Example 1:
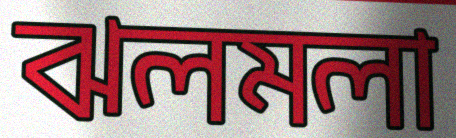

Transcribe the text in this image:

ঝলমলা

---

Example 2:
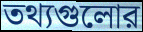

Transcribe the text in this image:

তথ্যগুলোর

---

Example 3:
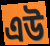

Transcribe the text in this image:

এউ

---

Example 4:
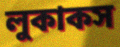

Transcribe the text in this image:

লুকাকস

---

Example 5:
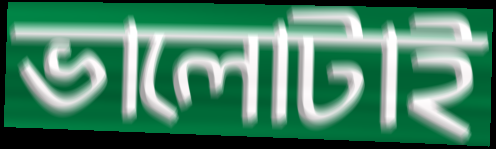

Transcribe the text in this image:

ভালোটাই